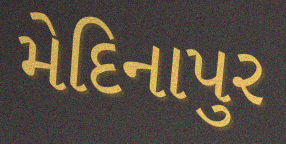
મેદિનાપુર